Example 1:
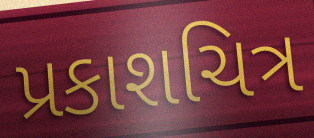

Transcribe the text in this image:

પ્રકાશચિત્ર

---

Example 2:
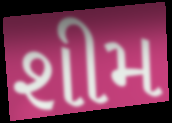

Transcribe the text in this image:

શીમ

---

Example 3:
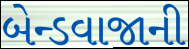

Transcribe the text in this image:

બેન્ડવાજાની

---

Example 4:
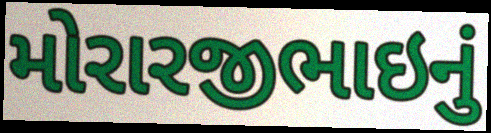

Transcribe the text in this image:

મોરારજીભાઇનું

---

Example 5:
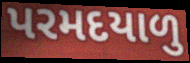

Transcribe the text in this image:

પરમદયાળુ